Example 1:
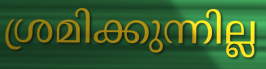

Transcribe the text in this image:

ശ്രമിക്കുന്നില്ല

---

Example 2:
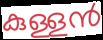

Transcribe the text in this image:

കുള്ളൻ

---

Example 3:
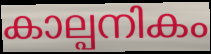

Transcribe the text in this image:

കാല്പനികം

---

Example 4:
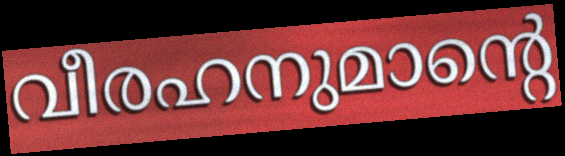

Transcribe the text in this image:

വീരഹനുമാന്റെ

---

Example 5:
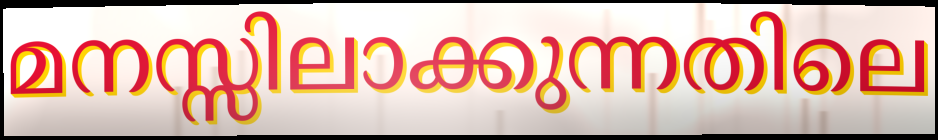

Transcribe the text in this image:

മനസ്സിലാക്കുന്നതിലെ